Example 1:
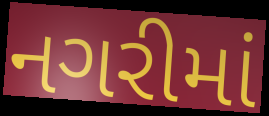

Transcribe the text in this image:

નગરીમાં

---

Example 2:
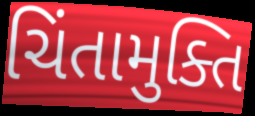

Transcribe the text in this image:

ચિંતામુક્તિ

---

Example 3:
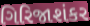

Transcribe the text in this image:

ગિરિજાશંકર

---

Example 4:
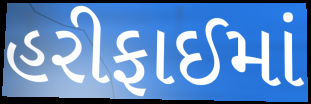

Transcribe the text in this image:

હરીફાઈમાં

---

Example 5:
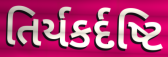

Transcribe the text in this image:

તિર્યકર્દષ્ટિ